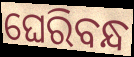
ଘେରିବନ୍ଧ